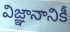
విజ్ఞానానికీ